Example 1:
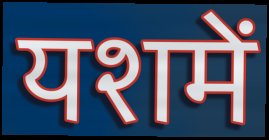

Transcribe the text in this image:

यशमें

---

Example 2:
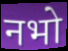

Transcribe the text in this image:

नभो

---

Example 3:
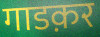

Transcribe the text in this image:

गाडक़र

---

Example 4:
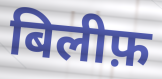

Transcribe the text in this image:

बिलीफ़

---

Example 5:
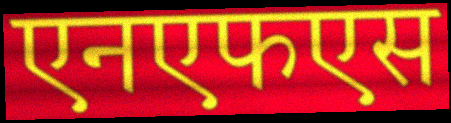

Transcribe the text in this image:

एनएफएस